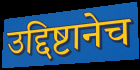
उद्दिष्टानेच